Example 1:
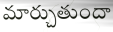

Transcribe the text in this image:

మార్చుతుందా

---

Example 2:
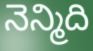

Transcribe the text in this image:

నెన్మిది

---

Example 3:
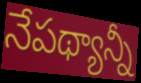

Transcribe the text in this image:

నేపథ్యాన్నీ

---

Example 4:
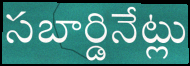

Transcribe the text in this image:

సబార్డినేట్లు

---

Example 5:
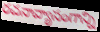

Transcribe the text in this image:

రచనావ్యాసంగాన్ని